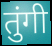
तुंगी